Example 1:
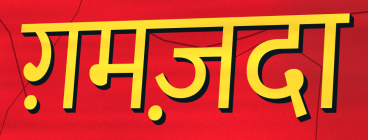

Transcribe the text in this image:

ग़मज़दा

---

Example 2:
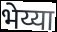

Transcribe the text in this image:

भेय्या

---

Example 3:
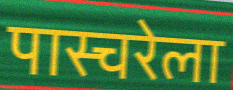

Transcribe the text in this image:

पास्चरेला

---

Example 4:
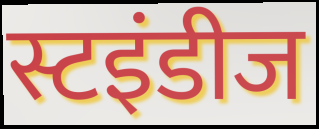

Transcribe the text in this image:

स्टइंडीज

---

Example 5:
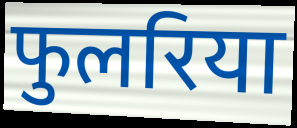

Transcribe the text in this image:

फुलरिया